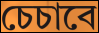
চেচাবে